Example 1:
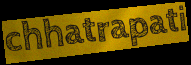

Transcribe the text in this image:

chhatrapati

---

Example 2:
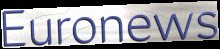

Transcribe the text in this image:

Euronews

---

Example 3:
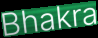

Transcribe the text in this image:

Bhakra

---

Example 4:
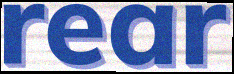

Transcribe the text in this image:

rear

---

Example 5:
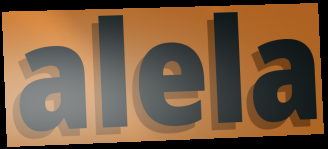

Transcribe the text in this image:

alela